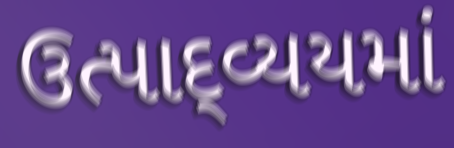
ઉત્પાદ્વ્યયમાં